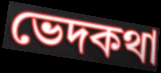
ভেদকথা